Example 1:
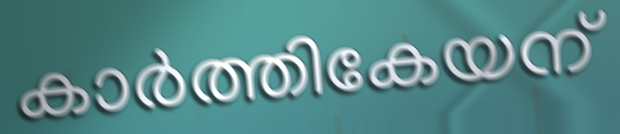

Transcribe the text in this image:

കാർത്തികേയന്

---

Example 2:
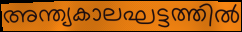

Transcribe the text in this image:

അന്ത്യകാലഘട്ടത്തിൽ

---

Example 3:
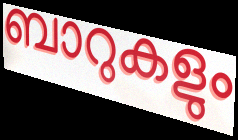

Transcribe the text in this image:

ബാറുകളും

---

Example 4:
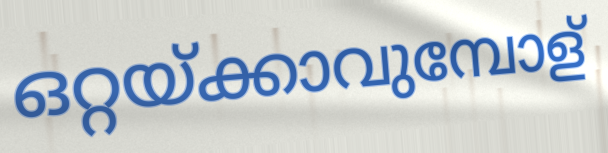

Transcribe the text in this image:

ഒറ്റയ്ക്കാവുമ്പോള്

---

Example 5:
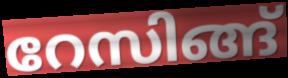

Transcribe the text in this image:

റേസിങ്ങ്